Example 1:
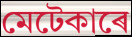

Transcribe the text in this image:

মেটেকাৰে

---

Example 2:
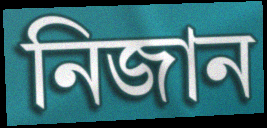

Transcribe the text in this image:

নিজান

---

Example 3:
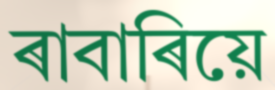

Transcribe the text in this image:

ৰাবাৰিয়ে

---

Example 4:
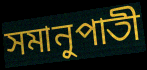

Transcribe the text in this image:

সমানুপাতী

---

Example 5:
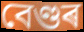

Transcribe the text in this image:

বেণ্ডৰ